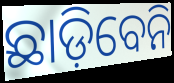
ଛାଡ଼ିବେନି